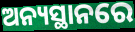
ଅନ୍ୟସ୍ଥାନରେ